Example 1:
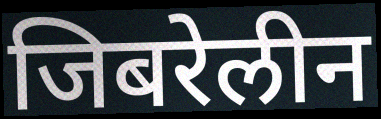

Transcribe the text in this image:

जिबरेलीन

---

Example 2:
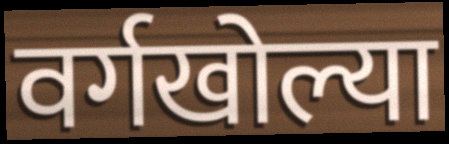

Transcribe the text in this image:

वर्गखोल्या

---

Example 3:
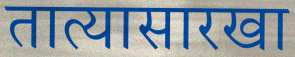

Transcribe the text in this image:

तात्यासारखा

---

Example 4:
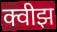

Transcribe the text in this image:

क्वीझ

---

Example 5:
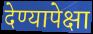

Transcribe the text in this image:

देण्यापेक्षा